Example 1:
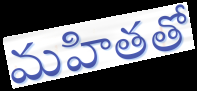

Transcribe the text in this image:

మహితతో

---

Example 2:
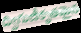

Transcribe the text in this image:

ద్విగుణీకృతమైన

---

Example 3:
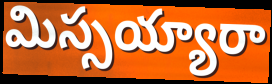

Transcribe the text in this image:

మిస్సయ్యారా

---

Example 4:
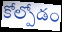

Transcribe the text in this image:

కోల్పోడం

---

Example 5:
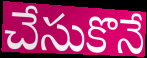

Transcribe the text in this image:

చేసుకొనే